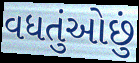
વધતુંઓછું